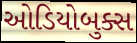
ઓડિયોબુક્સ